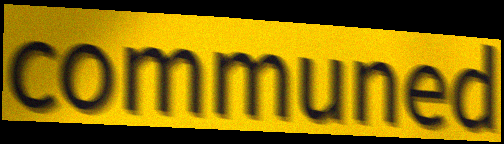
communed